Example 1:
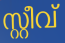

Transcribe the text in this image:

സ്റ്റീവ്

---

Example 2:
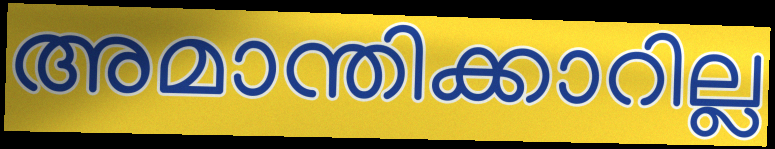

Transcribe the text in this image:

അമാന്തിക്കാറില്ല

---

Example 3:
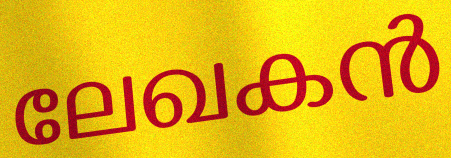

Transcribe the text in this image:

ലേഖകൻ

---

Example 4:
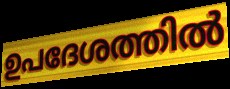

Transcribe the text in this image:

ഉപദേശത്തിൽ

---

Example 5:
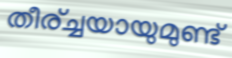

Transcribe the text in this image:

തീര്ച്ചയായുമുണ്ട്